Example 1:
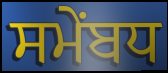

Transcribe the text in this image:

ਸਮੇਂਬਧ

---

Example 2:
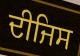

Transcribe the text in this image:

ਦੀਜਿਸ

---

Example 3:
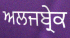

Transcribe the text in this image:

ਅਲਜਬ੍ਰੇਕ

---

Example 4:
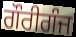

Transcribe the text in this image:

ਗੌਰੀਗੰਜ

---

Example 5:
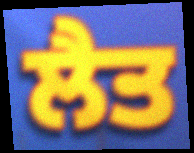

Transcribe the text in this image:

ਲੈਤ